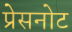
प्रेसनोट